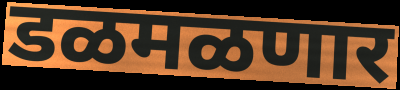
डळमळणार